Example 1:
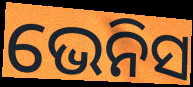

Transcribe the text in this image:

ଭେନିସ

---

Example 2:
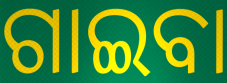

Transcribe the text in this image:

ଗାଇବା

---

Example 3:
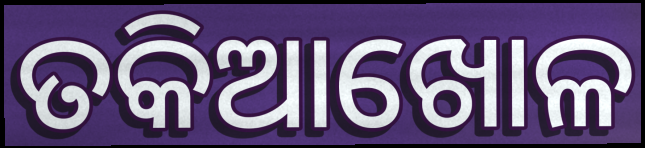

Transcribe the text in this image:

ତକିଆଖୋଳ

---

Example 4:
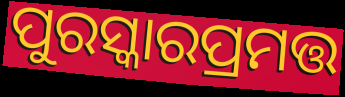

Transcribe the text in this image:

ପୁରସ୍କାରପ୍ରମତ୍ତ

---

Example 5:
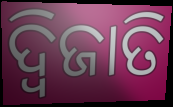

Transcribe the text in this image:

ଦ୍ୱିଜାତି